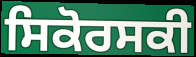
ਸਿਕੋਰਸਕੀ